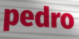
pedro